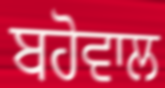
ਬਹੋਵਾਲ